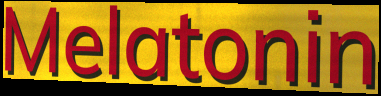
Melatonin